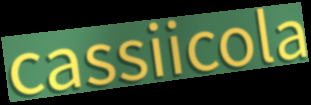
cassiicola